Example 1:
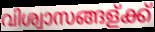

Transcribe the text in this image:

വിശ്വാസങ്ങള്ക്ക്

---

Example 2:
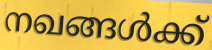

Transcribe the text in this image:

നഖങ്ങൾക്ക്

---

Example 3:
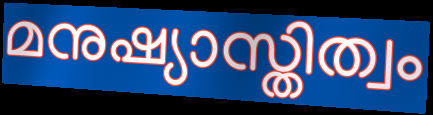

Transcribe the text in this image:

മനുഷ്യാസ്തിത്വം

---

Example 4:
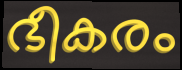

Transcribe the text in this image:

ഭീകരം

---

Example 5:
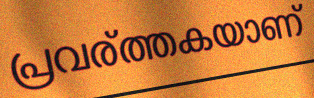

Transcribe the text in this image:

പ്രവര്ത്തകയാണ്